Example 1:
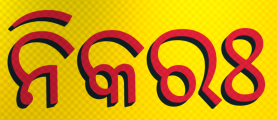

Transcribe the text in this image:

ନିକରଃ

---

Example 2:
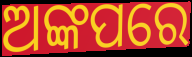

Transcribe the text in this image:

ଅଙ୍କପରେ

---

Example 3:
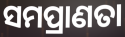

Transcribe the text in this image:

ସମପ୍ରାଣତା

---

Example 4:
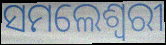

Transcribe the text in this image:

ସମଲେଶ୍ୱରୀ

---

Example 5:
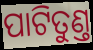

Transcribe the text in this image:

ପାଟିତୁଣ୍ତ